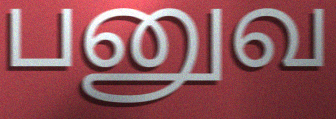
பனுவ